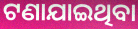
ଟଣାଯାଇଥିବା